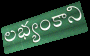
లభ్యంకాని